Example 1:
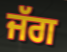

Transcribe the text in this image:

ਜੱਗ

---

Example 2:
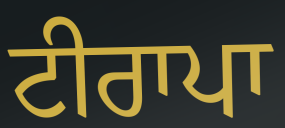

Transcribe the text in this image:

ਟੀਰਾਪਾ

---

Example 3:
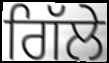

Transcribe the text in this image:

ਗਿੱਲੇ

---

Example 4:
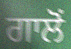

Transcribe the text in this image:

ਗਾਲੋਂ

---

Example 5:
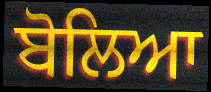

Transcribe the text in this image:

ਬੋਲਿਆ